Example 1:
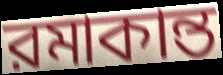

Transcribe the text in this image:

রমাকান্ত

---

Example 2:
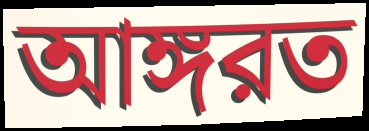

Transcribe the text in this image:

আঙ্গরত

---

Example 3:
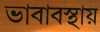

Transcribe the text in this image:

ভাবাবস্থায়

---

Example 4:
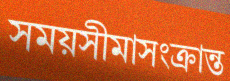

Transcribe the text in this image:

সময়সীমাসংক্রান্ত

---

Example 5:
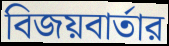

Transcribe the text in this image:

বিজয়বার্তার